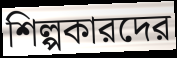
শিল্পকারদের